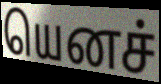
யெனச்